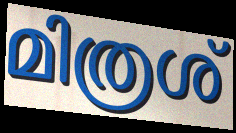
മിത്രശ്